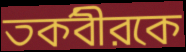
তর্কবীরকে